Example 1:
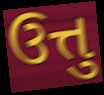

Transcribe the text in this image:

ઉત્તુ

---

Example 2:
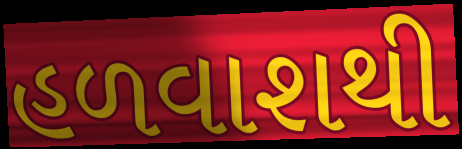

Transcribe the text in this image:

હળવાશથી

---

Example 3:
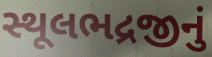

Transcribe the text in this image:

સ્થૂલભદ્રજીનું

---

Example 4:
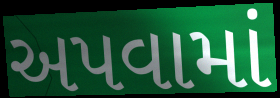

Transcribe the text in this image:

અપવામાં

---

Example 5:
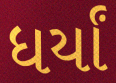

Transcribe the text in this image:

ધર્યાં